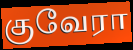
குவேரா